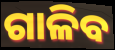
ଗାଳିବ